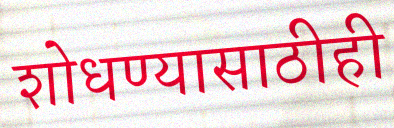
शोधण्यासाठीही